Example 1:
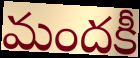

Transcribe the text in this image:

మందకీ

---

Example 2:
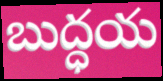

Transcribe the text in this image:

బుద్ధయ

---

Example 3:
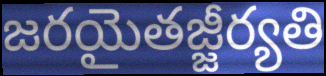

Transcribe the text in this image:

జరయైతజ్జీర్యతి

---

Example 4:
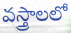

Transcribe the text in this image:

వస్త్రాలలో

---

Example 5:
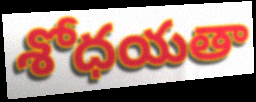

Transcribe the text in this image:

శోధయతా